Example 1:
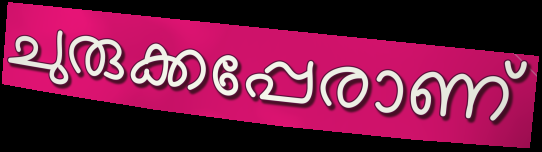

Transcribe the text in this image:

ചുരുക്കപ്പേരാണ്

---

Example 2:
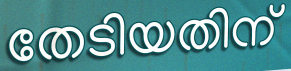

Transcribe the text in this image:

തേടിയതിന്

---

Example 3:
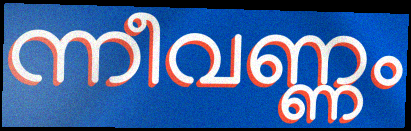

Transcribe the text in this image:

ന്നീവണ്ണം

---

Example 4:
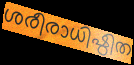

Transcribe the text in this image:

ശരീരാധിഷ്ഠിത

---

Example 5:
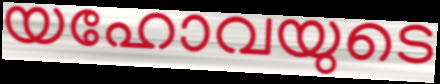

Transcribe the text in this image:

യഹോവയുടെ